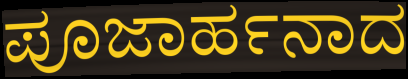
ಪೂಜಾರ್ಹನಾದ